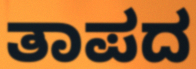
ತಾಪದ